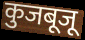
कुजबूजू